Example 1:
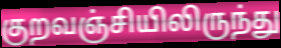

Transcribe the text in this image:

குறவஞ்சியிலிருந்து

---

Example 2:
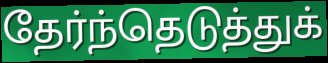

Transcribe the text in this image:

தேர்ந்தெடுத்துக்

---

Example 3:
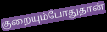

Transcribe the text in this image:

குறையும்போதுதான்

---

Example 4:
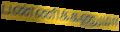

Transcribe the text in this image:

பண்ணிக்கணுமா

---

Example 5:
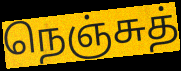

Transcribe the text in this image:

நெஞ்சுத்